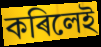
কৰিলেই